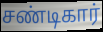
சண்டிகார்